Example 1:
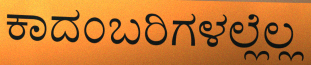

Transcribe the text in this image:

ಕಾದಂಬರಿಗಳಲ್ಲೆಲ್ಲ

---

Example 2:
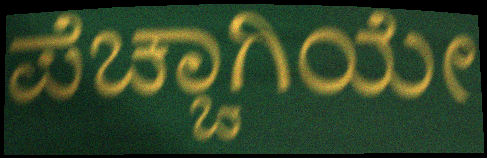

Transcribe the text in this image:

ಪೆಚ್ಚಾಗಿಯೇ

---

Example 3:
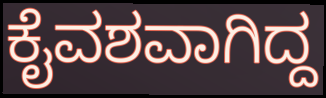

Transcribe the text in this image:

ಕೈವಶವಾಗಿದ್ದ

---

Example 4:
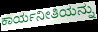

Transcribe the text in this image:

ಕಾರ್ಯನೀತಿಯನ್ನು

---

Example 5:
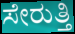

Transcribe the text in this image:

ಸೇರುತ್ತಿ